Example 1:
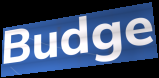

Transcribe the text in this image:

Budge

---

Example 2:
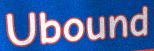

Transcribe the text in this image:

Ubound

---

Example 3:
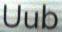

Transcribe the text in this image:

Uub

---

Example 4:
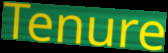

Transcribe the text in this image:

Tenure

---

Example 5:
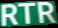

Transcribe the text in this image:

RTR